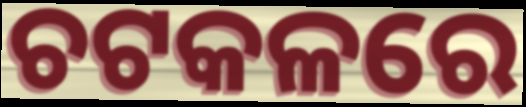
ଚଟକଳରେ